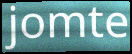
jomte